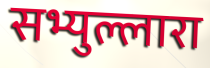
सभ्युल्लारा